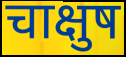
चाक्षुष